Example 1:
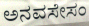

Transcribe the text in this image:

ಅನವಸೇಸಂ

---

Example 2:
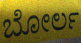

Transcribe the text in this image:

ಬೋರ್ಲ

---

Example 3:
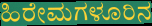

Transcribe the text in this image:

ಹಿರೇಮಗಳೂರಿನ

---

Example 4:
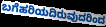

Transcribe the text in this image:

ಬಗೆಹರಿಯದಿರುವುದರಿಂದ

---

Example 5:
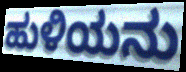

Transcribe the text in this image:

ಹುಳಿಯನು